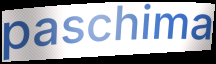
paschima